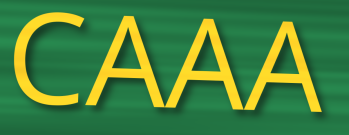
CAAA